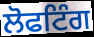
ਲੋਫਟਿੰਗ